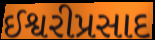
ઈશ્વરીપ્રસાદ